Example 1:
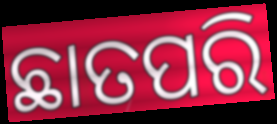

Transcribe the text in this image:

ଛାତପରି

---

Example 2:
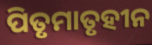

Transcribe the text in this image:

ପିତୃମାତୃହୀନ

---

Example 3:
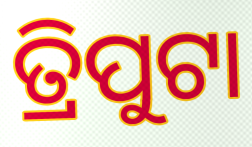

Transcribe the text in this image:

ତ୍ରିପୁଟା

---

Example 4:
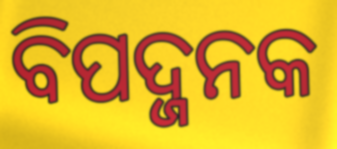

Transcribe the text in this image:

ବିପଦ୍ଜନକ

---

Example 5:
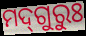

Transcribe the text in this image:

ମଦ୍‌ଗୁରୁଃ